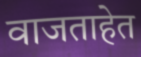
वाजताहेत